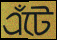
এঁটে